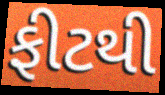
ફીટથી